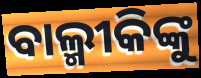
ବାଲ୍ମୀକିଙ୍କୁ